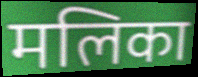
मलिका